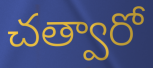
చత్వారో